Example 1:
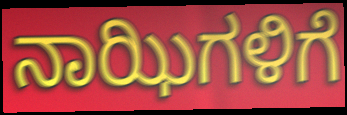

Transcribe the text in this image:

ನಾಝಿಗಳಿಗೆ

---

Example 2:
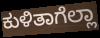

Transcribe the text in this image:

ಕುಳಿತಾಗೆಲ್ಲಾ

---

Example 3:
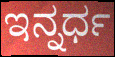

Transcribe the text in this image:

ಇನ್ನರ್ಧ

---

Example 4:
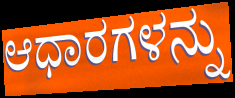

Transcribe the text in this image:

ಆಧಾರಗಳನ್ನು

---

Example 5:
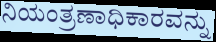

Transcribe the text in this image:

ನಿಯಂತ್ರಣಾಧಿಕಾರವನ್ನು